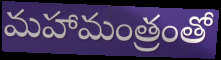
మహామంత్రంతో